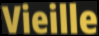
Vieille